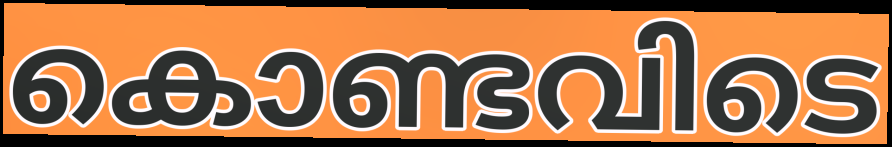
കൊണ്ടവിടെ